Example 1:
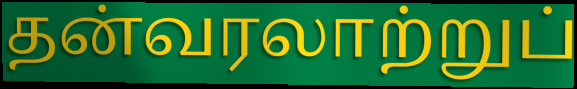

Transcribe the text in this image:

தன்வரலாற்றுப்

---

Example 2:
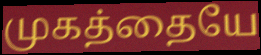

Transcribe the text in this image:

முகத்தையே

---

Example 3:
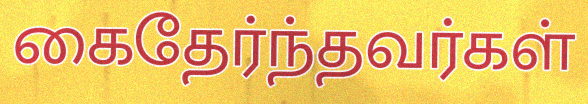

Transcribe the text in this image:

கைதேர்ந்தவர்கள்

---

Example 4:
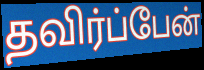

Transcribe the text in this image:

தவிர்ப்பேன்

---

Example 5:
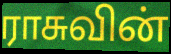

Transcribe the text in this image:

ராசுவின்